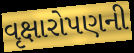
વૃક્ષારોપણની